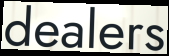
dealers